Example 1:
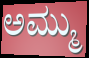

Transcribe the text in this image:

ಅಮ್ಮು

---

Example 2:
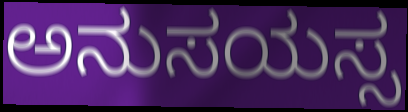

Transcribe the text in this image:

ಅನುಸಯಸ್ಸ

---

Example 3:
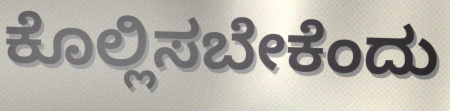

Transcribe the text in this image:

ಕೊಲ್ಲಿಸಬೇಕೆಂದು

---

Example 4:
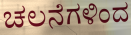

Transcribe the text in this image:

ಚಲನೆಗಳಿಂದ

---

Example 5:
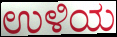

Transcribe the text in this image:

ಉಳಿಯ